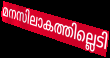
മനസിലാകത്തില്ലെടി